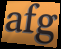
afg